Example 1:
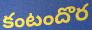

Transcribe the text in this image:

కంటందొర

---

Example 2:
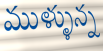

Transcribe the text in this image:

ముళ్ళున్న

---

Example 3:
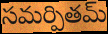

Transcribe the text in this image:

సమర్పితమ్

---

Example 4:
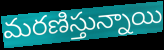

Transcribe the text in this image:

మరణిస్తున్నాయి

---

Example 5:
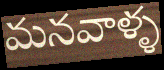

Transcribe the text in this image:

మనవాళ్ళ